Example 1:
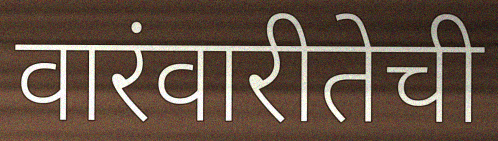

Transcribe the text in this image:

वारंवारीतेची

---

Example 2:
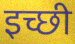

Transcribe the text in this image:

इच्छी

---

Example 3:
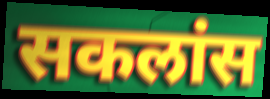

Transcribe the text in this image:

सकलांस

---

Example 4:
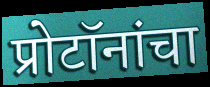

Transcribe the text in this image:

प्रोटॉनांचा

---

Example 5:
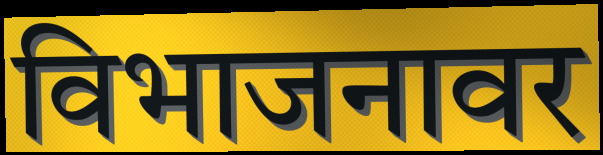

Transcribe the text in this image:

विभाजनावर